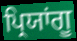
ਪ੍ਰਿਯਾਂਗੂ